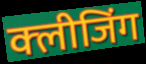
क्‍लीजिंग